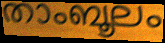
താംബൂലം